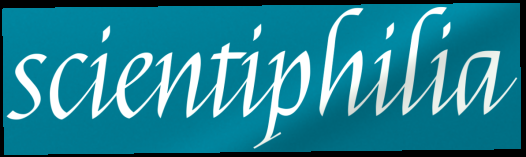
scientiphilia